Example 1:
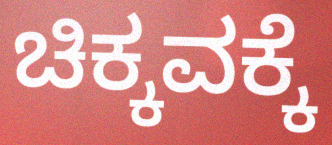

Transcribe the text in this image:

ಚಿಕ್ಕವಕ್ಕೆ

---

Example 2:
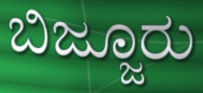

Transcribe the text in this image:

ಬಿಜ್ಜೂರು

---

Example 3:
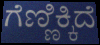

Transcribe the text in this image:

ಗೆಣ್ಣಿಕ್ಕಿದೆ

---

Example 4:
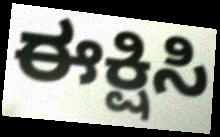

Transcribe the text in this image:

ಈಕ್ಷಿಸಿ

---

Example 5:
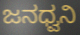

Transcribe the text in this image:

ಜನಧ್ವನಿ